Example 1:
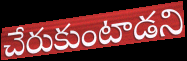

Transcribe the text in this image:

చేరుకుంటాడని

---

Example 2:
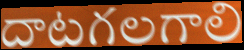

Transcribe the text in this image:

దాటగలగాలి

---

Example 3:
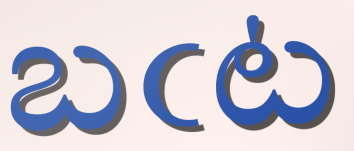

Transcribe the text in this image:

బఁట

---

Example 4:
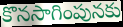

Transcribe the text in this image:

కొనసాగింపునకు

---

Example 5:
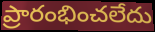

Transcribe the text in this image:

ప్రారంభించలేదు